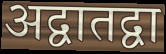
अद्वातद्वा